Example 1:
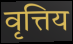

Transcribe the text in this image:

वृत्तिय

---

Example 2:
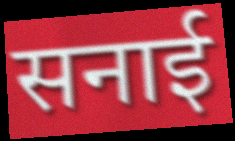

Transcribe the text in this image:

सनाई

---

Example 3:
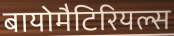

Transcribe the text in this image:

बायोमैटिरियल्स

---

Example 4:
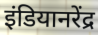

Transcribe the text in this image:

इंडियानरेंद्र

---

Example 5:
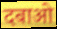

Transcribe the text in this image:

दबाओ